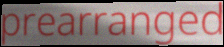
prearranged